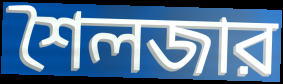
শৈলজার